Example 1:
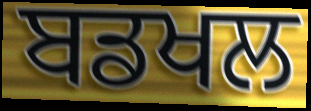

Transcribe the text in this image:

ਬਡਖਲ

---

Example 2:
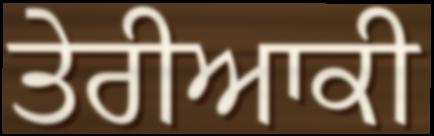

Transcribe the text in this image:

ਤੇਰੀਆਕੀ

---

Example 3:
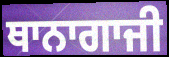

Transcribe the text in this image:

ਥਾਨਾਗਾਜੀ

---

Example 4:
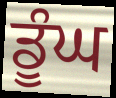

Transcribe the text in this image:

ਡੂੰਘ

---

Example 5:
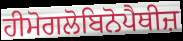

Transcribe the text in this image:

ਹੀਮੋਗਲੋਬਿਨੋਪੈਥੀਜ਼